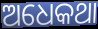
ଅଧେକଥା